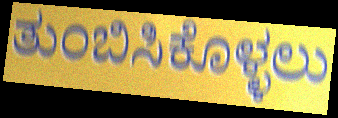
ತುಂಬಿಸಿಕೊಳ್ಳಲು